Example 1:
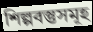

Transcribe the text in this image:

শিল্পবস্তুসমূহ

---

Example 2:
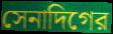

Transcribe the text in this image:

সেনাদিগের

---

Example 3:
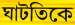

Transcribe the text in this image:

ঘাটতিকে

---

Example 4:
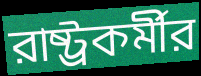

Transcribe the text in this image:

রাষ্ট্রকর্মীর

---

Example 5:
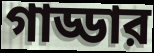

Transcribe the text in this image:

গাড্ডার